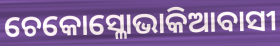
ଚେକୋସ୍ଳୋଭାକିଆବାସୀ